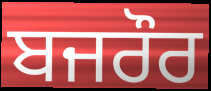
ਬਜਰੌਰ